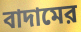
বাদামের